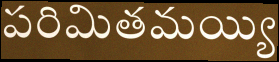
పరిమితమయ్యి